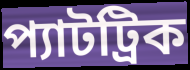
প্যাটট্রিক